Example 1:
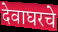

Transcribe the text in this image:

देवाघरचे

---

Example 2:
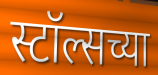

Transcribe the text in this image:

स्टॉल्सच्या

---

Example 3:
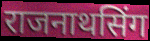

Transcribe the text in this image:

राजनाथसिंग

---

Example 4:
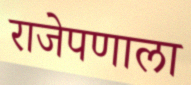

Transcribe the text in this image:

राजेपणाला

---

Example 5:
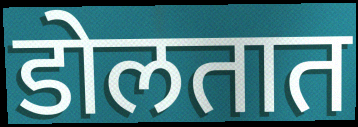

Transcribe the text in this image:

डोलतात